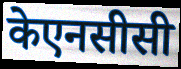
केएनसीसी